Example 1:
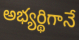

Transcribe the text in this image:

అభ్యర్థిగానే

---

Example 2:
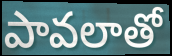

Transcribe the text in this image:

పావలాతో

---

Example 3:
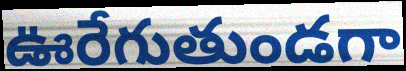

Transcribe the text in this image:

ఊరేగుతుండగా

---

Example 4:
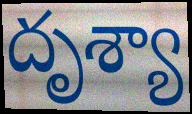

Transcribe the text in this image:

దృశ్యా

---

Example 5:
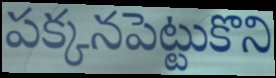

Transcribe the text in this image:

పక్కనపెట్టుకొని